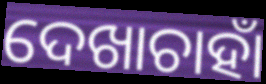
ଦେଖାଚାହାଁ